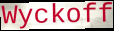
Wyckoff